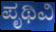
ಪೃಥಿವಿ